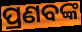
ପ୍ରଣବଙ୍କ